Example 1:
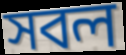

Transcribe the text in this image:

সবল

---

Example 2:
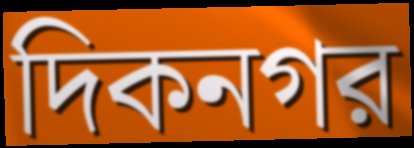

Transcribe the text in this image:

দিকনগর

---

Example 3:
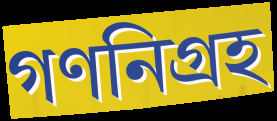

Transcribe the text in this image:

গণনিগ্রহ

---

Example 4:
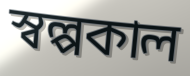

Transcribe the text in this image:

স্বল্পকাল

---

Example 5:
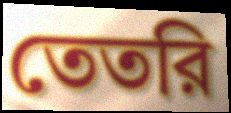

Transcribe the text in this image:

তেতরি